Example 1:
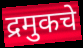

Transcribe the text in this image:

द्रमुकचे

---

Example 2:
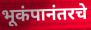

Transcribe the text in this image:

भूकंपानंतरचे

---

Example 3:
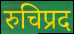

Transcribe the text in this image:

रुचिप्रद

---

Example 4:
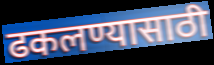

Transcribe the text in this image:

ढकलण्यासाठी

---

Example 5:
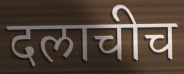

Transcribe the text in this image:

दलाचीच